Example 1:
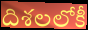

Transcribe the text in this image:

దిశలలోకీ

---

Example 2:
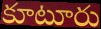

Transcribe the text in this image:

కూటూరు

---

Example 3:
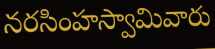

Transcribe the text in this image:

నరసింహస్వామివారు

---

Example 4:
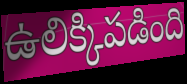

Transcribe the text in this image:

ఉలిక్కిపడింది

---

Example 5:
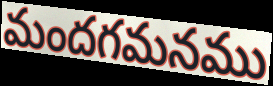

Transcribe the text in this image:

మందగమనము